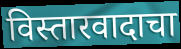
विस्तारवादाचा